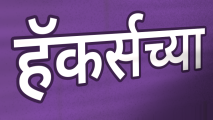
हॅकर्सच्या